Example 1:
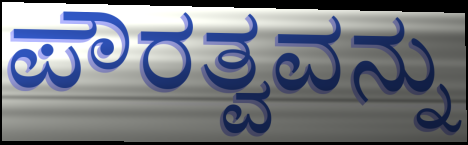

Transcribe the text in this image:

ಪೌರತ್ವವನ್ನು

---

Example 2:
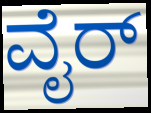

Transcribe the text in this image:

ವೈರ್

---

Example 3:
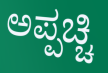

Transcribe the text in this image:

ಅಪ್ಪಚ್ಚಿ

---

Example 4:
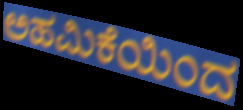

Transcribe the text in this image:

ಅಹಮಿಕೆಯಿಂದ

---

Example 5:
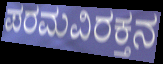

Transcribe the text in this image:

ಪರಮವಿರಕ್ತನ